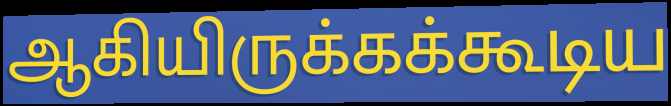
ஆகியிருக்கக்கூடிய